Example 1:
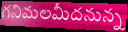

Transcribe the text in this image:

గనిమలమీదనున్న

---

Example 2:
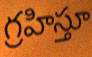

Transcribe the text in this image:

గ్రహిస్తూ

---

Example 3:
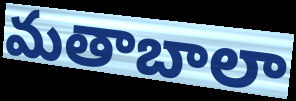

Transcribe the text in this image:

మతాబాలా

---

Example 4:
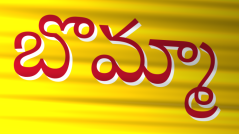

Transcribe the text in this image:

బొమ్మా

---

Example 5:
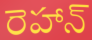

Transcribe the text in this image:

రెహాన్